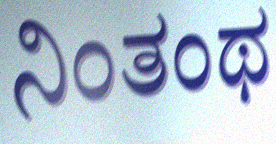
ನಿಂತಂಥ